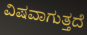
ವಿಷವಾಗುತ್ತದೆ